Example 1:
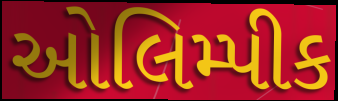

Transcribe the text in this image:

ઓલિમ્પીક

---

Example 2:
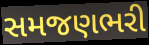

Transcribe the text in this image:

સમજણભરી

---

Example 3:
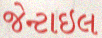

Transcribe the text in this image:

જેન્ટાઇલ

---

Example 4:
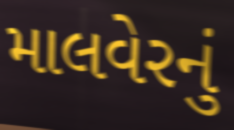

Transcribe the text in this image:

માલવેરનું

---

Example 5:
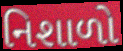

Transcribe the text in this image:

નિશાળો